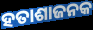
ହତାଶାଜନକ